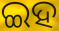
ଇହ